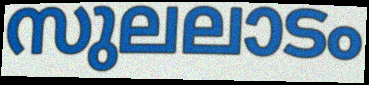
സുലലാടം